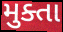
મુક્તા